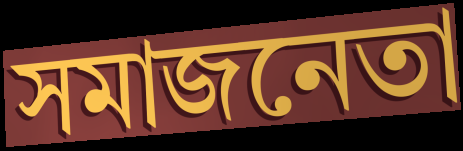
সমাজনেতা